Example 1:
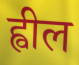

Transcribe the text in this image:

ह्वील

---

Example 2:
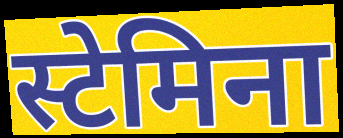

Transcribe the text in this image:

स्टेमिना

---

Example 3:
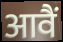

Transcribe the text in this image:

आवैं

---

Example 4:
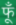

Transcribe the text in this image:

फूँ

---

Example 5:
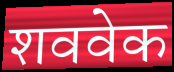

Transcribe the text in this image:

शववेक